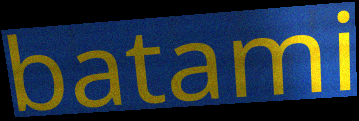
batami